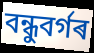
বন্ধুবৰ্গৰ